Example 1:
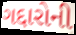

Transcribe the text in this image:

ગદ્દારોની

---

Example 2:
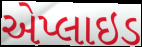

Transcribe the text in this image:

એપ્લાઇડ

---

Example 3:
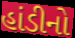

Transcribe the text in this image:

હાંડીનો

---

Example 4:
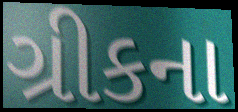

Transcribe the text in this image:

ગ્રીકના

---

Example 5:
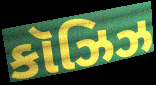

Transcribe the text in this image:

કૉઝિઝ